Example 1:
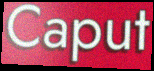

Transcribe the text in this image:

Caput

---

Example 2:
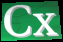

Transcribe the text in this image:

Cx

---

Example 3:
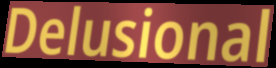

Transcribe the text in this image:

Delusional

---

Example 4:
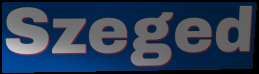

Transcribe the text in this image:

Szeged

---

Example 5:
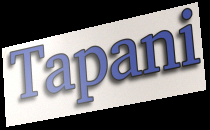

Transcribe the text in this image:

Tapani